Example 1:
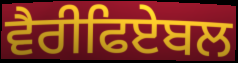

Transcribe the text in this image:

ਵੈਰੀਫਿਏਬਲ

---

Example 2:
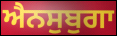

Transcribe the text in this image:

ਐਨਸੁਬੁਗਾ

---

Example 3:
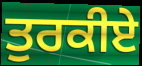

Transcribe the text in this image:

ਤੁਰਕੀਏ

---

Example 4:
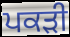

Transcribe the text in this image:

ਪਕੜੀ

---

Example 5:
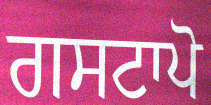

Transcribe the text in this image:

ਗਸਟਾਪੋ